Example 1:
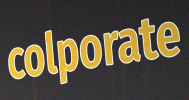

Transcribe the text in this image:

colporate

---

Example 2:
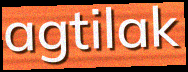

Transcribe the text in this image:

agtilak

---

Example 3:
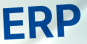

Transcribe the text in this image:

ERP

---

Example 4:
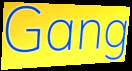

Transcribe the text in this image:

Gang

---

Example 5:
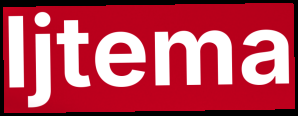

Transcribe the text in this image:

Ijtema